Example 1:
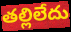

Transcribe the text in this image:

తల్లిలేదు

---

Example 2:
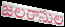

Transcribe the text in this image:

జలరాసుల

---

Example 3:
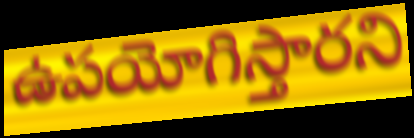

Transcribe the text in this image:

ఉపయోగిస్తారని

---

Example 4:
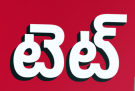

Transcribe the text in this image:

టెట్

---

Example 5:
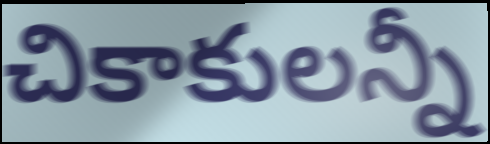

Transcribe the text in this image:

చికాకులన్నీ